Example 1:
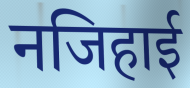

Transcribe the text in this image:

नजिहाई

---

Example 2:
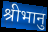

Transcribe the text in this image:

श्रीभानु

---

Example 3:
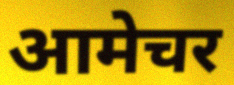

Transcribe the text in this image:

आमेचर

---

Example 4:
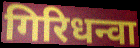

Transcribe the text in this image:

गिरिधन्वा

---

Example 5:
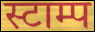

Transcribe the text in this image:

स्टाम्प